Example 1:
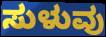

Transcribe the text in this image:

ಸುಳುವು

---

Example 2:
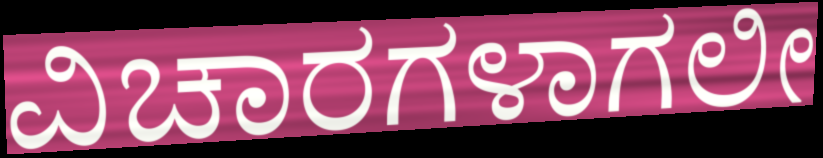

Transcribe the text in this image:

ವಿಚಾರಗಳಾಗಲೀ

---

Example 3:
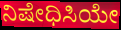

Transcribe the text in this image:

ನಿಷೇಧಿಸಿಯೇ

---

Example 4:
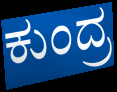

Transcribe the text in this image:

ಕುಂದ್ರ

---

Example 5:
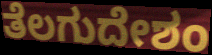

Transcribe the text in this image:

ತೆಲಗುದೇಶಂ